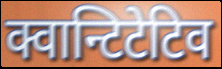
क्वान्टिटेटिव